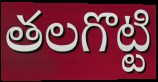
తలగొట్టి